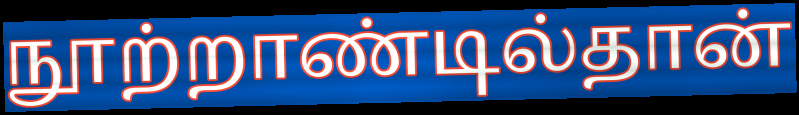
நூற்றாண்டில்தான்